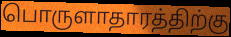
பொருளாதாரத்திற்கு